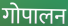
गोपालन